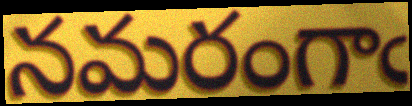
నమరంగాఁ